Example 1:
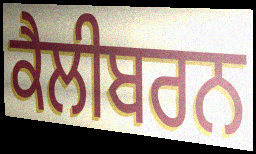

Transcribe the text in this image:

ਕੈਲੀਬਰਨ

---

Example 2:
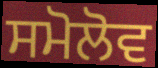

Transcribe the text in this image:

ਸਮੋਲੋਵ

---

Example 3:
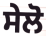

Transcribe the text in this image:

ਸੇਲੋ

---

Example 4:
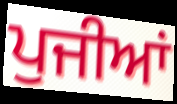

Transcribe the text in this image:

ਪੁਜੀਆਂ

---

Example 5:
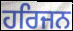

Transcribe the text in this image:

ਹਰਿਜਨ